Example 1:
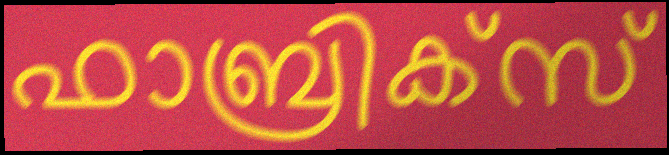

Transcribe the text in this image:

ഫാബ്രിക്സ്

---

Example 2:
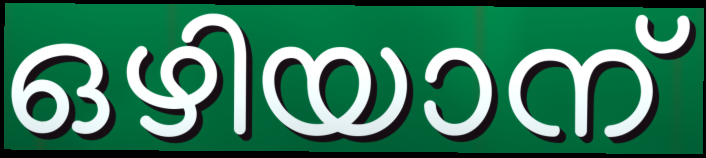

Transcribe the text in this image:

ഒഴിയാന്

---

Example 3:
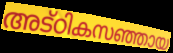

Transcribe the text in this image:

അട്ഠികസഞ്ഞായ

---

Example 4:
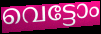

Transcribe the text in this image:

വെട്ടോം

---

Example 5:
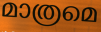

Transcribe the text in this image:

മാത്രമെ